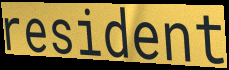
resident